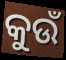
କୁଉଁ